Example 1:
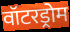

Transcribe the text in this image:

वॉटरड्रोम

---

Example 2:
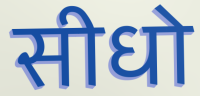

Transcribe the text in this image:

सीधो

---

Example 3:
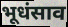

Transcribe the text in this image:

भूधंसाव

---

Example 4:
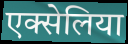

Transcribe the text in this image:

एक्सेलिया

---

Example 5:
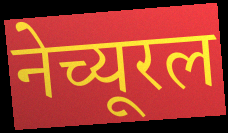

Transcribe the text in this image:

नेच्यूरल